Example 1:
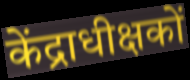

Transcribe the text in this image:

केंद्राधीक्षकों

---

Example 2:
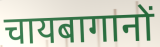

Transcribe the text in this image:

चायबागानों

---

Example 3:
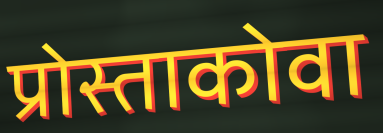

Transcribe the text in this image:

प्रोस्ताकोवा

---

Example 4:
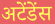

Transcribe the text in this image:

अटेंडेंस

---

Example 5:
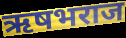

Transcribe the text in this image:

ऋषभराज